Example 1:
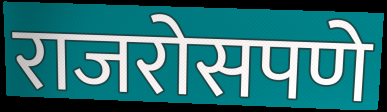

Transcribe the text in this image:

राजरोसपणे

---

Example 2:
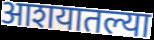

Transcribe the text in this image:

आशयातल्या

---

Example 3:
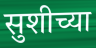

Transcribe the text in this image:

सुशीच्या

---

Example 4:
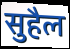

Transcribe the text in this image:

सुहैल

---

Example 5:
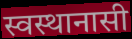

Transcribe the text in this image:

स्वस्थानासी